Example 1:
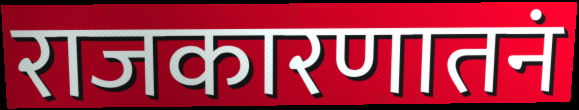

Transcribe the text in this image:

राजकारणातनं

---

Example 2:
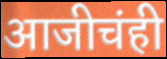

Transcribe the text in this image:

आजीचंही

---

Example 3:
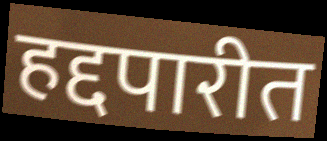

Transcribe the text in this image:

हद्दपारीत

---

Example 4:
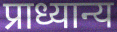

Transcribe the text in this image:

प्राध्यान्य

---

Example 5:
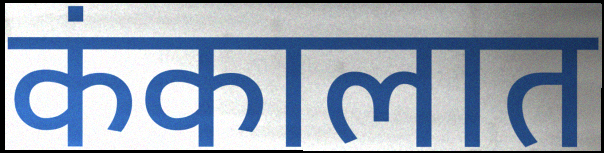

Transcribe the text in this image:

कंकालात